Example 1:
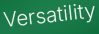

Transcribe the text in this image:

Versatility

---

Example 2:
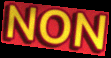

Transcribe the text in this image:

NON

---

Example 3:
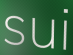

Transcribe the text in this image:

sui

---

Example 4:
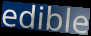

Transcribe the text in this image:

edible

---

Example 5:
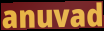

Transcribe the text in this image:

anuvad